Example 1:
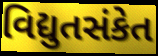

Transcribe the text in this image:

વિદ્યુતસંકેત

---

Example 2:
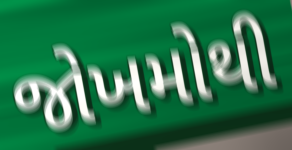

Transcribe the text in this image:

જોખમોથી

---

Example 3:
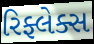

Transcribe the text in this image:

રિફ્લેક્સ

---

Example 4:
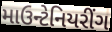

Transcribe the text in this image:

માઉન્ટેનિયરીંગ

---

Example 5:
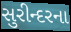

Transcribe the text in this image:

સુરીન્દરના